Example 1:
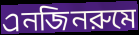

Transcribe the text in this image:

এনজিনরুমে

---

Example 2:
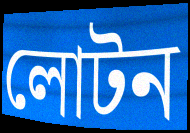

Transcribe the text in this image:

লোটন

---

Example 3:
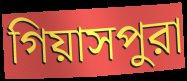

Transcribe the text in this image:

গিয়াসপুরা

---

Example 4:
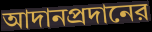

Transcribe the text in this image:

আদানপ্রদানের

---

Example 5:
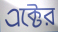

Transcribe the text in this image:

এক্টের